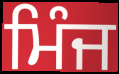
ਮਿੰਜ